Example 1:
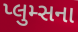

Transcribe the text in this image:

પ્લુમ્સના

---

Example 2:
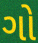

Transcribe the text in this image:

ગો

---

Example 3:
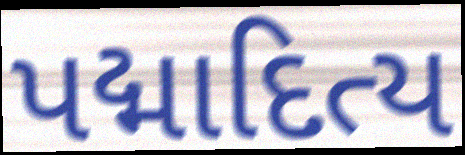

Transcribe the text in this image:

પદ્માદિત્ય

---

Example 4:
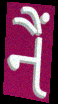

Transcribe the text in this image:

નૈં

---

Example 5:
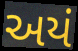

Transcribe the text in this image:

અયં